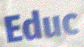
Educ